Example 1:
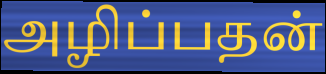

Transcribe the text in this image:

அழிப்பதன்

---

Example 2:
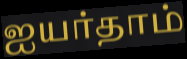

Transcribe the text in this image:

ஐயர்தாம்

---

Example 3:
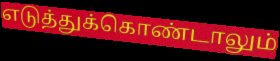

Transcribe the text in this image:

எடுத்துக்கொண்டாலும்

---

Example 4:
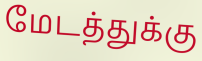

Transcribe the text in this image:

மேடத்துக்கு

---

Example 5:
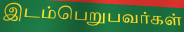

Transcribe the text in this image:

இடம்பெறுபவர்கள்